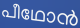
പീഥോൻ